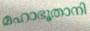
മഹാഭൂതാനി